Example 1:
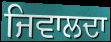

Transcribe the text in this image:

ਜਿਵਾਲਦਾ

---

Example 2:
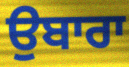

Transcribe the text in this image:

ਉਬਾਰਾ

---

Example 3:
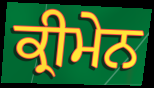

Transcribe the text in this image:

ਕ੍ਰੀਮੇਨ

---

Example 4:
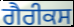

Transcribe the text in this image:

ਗੈਰੀਕਸ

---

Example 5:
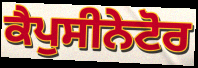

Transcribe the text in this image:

ਕੈਪੁਸੀਨੇਟੋਰ